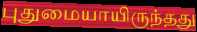
புதுமையாயிருந்தது